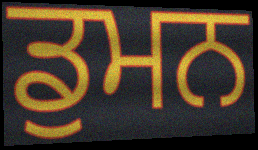
ਡੁਮਨ